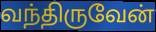
வந்திருவேன்